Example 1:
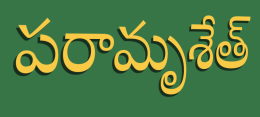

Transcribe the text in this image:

పరామృశేత్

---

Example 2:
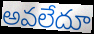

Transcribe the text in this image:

అవలేదూ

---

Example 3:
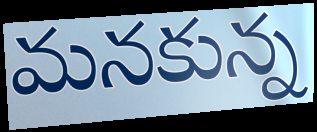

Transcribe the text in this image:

మనకున్న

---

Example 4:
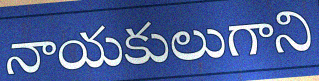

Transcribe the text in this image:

నాయకులుగాని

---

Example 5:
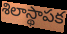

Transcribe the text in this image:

శిలాస్థాపక